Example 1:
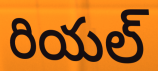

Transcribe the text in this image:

రియల్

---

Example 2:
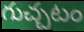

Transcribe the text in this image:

గుచ్చటం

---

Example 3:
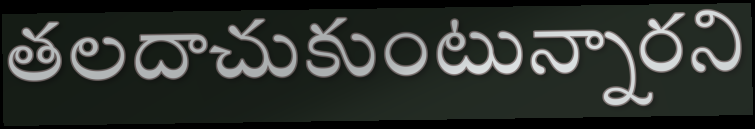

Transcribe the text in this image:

తలదాచుకుంటున్నారని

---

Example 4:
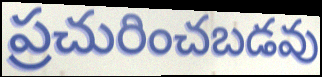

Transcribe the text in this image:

ప్రచురించబడవు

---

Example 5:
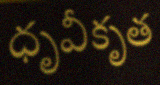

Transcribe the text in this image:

ధృవీకృత